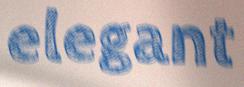
elegant